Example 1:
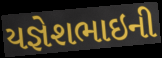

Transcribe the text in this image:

યજ્ઞેશભાઇની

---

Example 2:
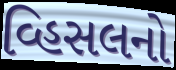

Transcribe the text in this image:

વ્હિસલનો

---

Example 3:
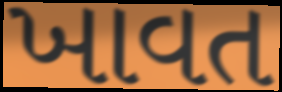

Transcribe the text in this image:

ખાવત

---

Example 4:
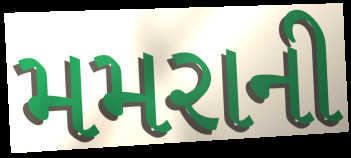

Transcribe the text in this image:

મમરાની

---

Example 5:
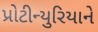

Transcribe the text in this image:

પ્રોટીન્યુરિયાને